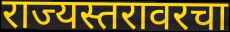
राज्यस्तरावरचा